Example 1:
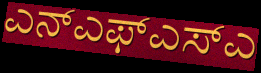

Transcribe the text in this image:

ಎನ್ಎಫ್ಎಸ್ಎ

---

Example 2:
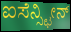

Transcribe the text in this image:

ಐಸೆನ್ಸ್ಟೀನ್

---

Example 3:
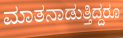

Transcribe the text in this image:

ಮಾತನಾಡುತ್ತಿದ್ದರೂ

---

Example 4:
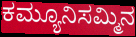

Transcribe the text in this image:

ಕಮ್ಯೂನಿಸಮ್ಮಿನ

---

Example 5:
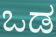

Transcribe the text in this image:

ಒಡ